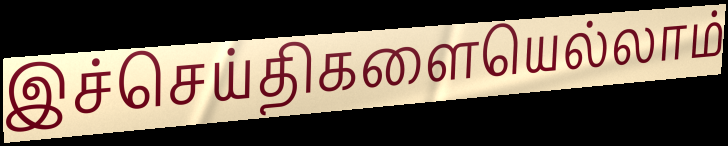
இச்செய்திகளையெல்லாம்